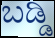
ಬಡ್ಡಿ